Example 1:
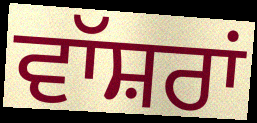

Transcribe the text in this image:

ਵਾੱਸ਼ਰਾਂ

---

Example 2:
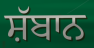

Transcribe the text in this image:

ਸ਼ੱਬਾਨ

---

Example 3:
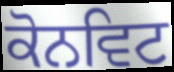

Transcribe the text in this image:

ਕੋਨਵਿਟ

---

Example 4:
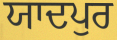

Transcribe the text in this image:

ਯਾਦਪੁਰ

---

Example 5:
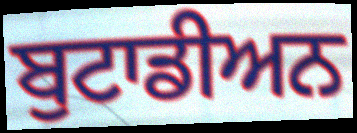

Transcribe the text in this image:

ਬੁਟਾਡੀਅਨ